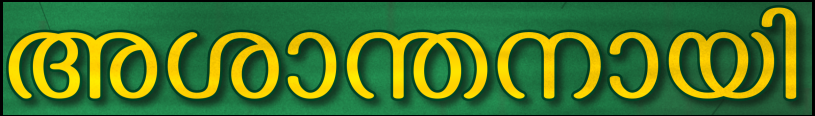
അശാന്തനായി